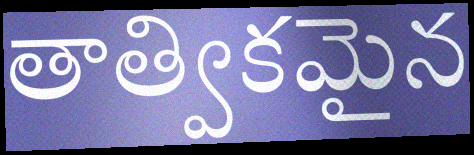
తాత్వికమైన